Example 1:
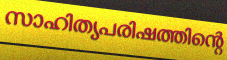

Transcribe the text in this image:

സാഹിത്യപരിഷത്തിന്റെ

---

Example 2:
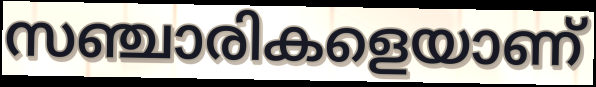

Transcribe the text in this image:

സഞ്ചാരികളെയാണ്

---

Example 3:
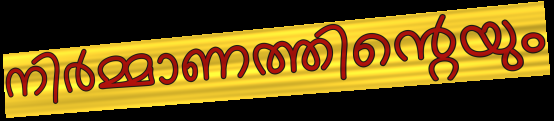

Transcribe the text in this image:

നിർമ്മാണത്തിന്റെയും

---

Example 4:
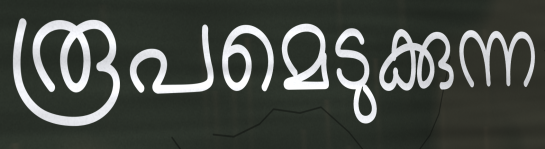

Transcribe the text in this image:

രൂപമെടുക്കുന്ന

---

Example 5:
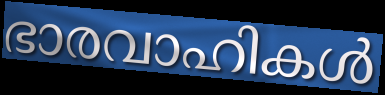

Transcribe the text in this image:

ഭാരവാഹികൾ